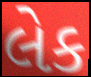
લેક